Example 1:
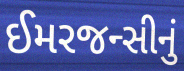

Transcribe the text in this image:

ઈમરજન્સીનું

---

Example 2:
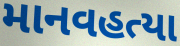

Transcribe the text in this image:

માનવહત્યા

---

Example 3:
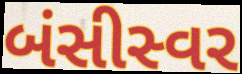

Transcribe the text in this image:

બંસીસ્વર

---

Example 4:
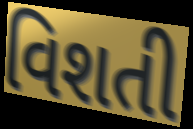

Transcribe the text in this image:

વિશતી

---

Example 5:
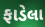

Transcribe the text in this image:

ફાડેલા